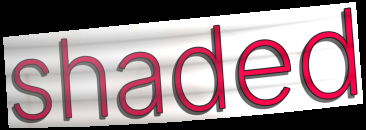
shaded